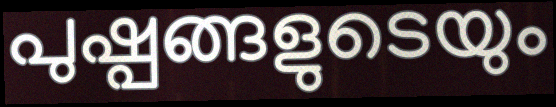
പുഷ്പങ്ങളുടെയും